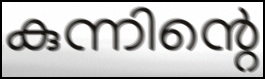
കുന്നിന്റെ